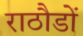
राठौडों